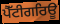
ਪੈੱਟੀਗਰਿਊ